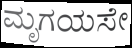
ಮೃಗಯಸೇ